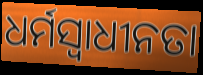
ଧର୍ମସ୍ୱାଧୀନତା